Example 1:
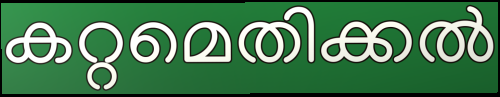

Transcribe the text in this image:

കറ്റമെതിക്കൽ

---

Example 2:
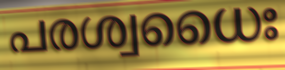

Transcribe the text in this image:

പരശ്വധൈഃ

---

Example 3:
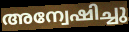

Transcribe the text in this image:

അന്വേഷിച്ചു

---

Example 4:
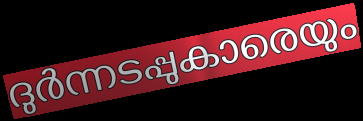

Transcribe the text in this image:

ദുർന്നടപ്പുകാരെയും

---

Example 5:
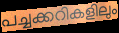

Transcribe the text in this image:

പച്ചക്കറികളിലും